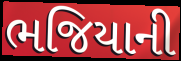
ભજિયાની